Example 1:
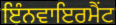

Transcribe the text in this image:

ਇੰਨਵਾਇਰਮੈਂਟ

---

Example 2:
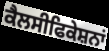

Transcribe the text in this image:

ਕੈਲਸੀਫਿਕੇਸ਼ਨਾਂ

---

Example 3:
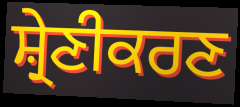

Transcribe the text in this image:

ਸ਼੍ਰੇਣੀਕਰਣ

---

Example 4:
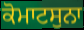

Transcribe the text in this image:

ਕੋਮਾਟਸੁਨਾ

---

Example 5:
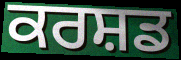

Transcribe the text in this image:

ਕਰਸ਼ਡ